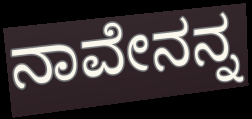
ನಾವೇನನ್ನ